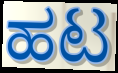
ಹಟ